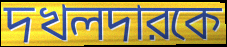
দখলদারকে